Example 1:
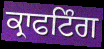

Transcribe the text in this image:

ਕ੍ਰਾਫਟਿੰਗ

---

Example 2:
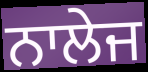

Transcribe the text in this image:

ਨਾਲੇਜ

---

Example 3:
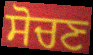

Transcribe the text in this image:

ਸੋਚਣ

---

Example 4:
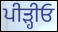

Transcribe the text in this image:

ਪੀੜ੍ਹੀਓ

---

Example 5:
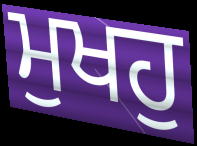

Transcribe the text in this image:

ਮੁਖਹੁ